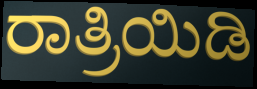
ರಾತ್ರಿಯಿಡಿ